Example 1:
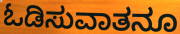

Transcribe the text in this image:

ಓಡಿಸುವಾತನೂ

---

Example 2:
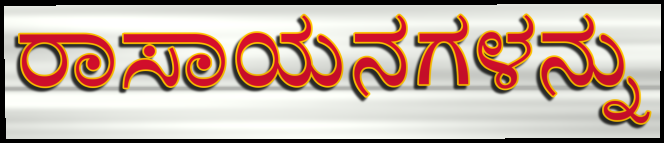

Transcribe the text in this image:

ರಾಸಾಯನಗಳನ್ನು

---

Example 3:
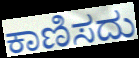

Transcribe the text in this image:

ಕಾಣಿಸದು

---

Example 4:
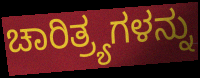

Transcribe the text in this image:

ಚಾರಿತ್ರ್ಯಗಳನ್ನು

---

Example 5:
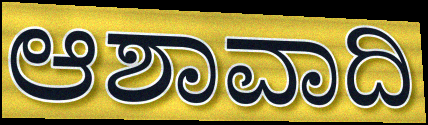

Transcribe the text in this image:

ಆಶಾವಾದಿ